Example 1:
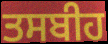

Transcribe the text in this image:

ਤਸਬੀਹ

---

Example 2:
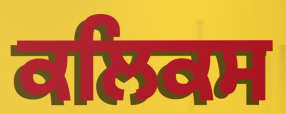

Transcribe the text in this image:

ਕਲਿਕਸ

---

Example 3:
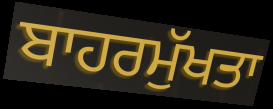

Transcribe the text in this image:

ਬਾਹਰਮੁੱਖਤਾ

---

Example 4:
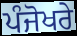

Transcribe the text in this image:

ਪੰਜੋਖਰੇ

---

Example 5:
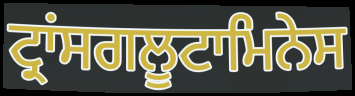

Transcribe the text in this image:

ਟ੍ਰਾਂਸਗਲੂਟਾਮਿਨੇਸ